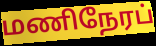
மணிநேரப்